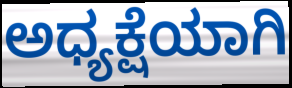
ಅಧ್ಯಕ್ಷೆಯಾಗಿ